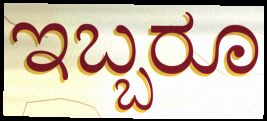
ಇಬ್ಬರೂ